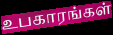
உபகாரங்கள்